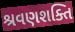
શ્રવણશક્તિ